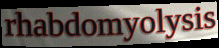
rhabdomyolysis